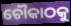
ଚୌକାଠକୁ